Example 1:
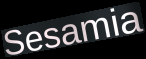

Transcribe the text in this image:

Sesamia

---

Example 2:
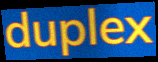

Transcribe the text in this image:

duplex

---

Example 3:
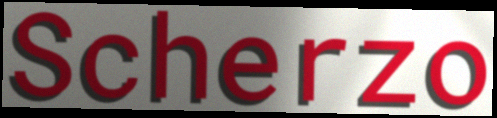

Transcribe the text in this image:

Scherzo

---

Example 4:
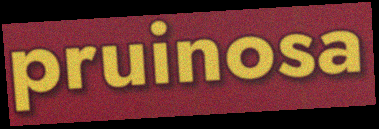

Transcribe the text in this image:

pruinosa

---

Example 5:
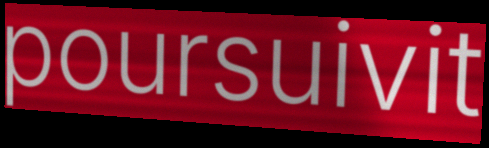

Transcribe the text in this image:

poursuivit